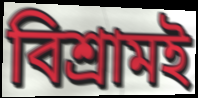
বিশ্রামই